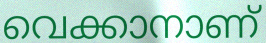
വെക്കാനാണ്